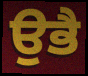
ਉਭੈ